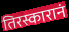
तिरस्कारानं